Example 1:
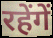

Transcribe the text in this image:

रहेंगें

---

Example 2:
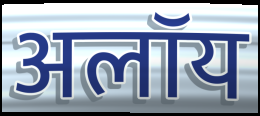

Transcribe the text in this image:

अलॉय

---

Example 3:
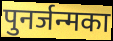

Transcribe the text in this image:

पुनर्जन्मका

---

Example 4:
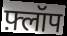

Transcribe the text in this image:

फ़्लॉप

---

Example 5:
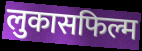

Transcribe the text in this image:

लुकासफिल्म